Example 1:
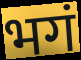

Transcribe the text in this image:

भगं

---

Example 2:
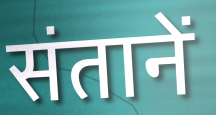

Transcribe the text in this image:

संतानें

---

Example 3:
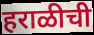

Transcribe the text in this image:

हराळीची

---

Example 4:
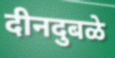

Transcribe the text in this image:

दीनदुबळे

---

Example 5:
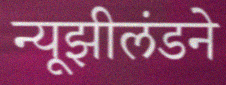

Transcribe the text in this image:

न्यूझीलंडने